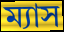
ম্যাস